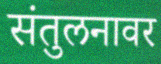
संतुलनावर